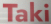
Taki